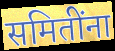
समितींना